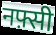
नफ़्सी